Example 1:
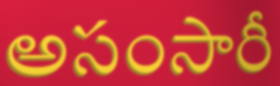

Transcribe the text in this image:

అసంసారీ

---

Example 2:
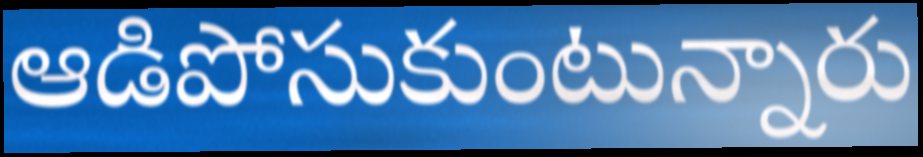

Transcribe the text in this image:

ఆడిపోసుకుంటున్నారు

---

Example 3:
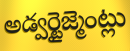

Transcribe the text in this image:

అడ్వర్టైజ్మెంట్లు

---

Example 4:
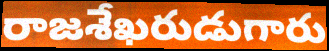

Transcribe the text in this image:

రాజశేఖరుడుగారు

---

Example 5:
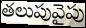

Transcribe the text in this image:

తలుపువైపు